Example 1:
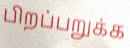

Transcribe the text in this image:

பிறப்பறுக்க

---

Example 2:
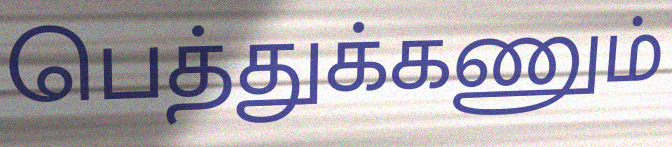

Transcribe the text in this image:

பெத்துக்கணும்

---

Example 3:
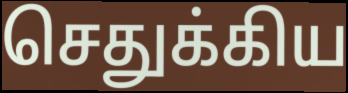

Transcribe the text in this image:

செதுக்கிய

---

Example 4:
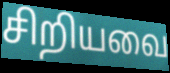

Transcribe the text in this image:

சிறியவை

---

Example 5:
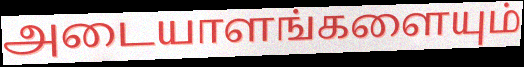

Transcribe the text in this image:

அடையாளங்களையும்